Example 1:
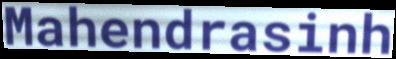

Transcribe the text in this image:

Mahendrasinh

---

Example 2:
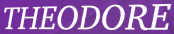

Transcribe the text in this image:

THEODORE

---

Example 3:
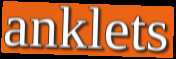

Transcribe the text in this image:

anklets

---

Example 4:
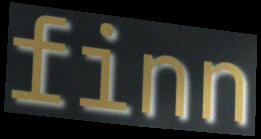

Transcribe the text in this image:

finn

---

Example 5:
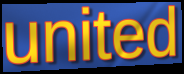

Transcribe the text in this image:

united